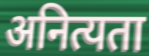
अनित्यता